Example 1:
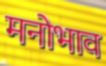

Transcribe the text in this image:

मनोभाव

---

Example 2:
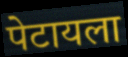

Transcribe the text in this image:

पेटायला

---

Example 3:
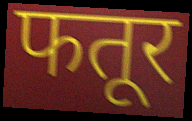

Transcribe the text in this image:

फतूर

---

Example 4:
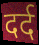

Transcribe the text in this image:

दर्द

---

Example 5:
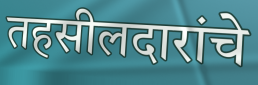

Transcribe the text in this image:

तहसीलदारांचे